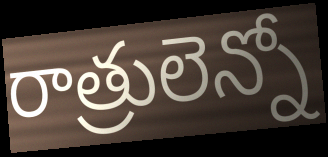
రాత్రులెన్నో